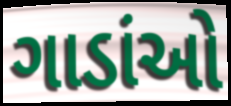
ગાડાંઓ